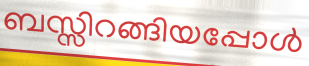
ബസ്സിറങ്ങിയപ്പോൾ